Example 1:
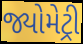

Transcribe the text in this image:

જ્યોમેટ્રી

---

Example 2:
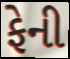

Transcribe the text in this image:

ફેની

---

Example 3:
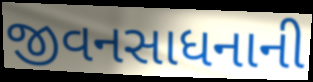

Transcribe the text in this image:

જીવનસાધનાની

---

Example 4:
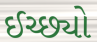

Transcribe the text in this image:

ઈચ્છ્યો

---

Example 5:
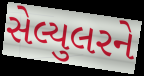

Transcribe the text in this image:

સેલ્યુલરને